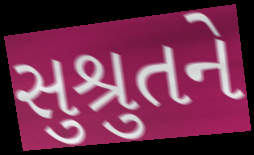
સુશ્રુતને